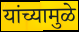
यांच्यामुळे